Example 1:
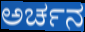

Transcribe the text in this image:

ಅರ್ಚನ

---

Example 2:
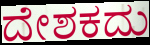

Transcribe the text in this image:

ದೇಶಕದು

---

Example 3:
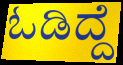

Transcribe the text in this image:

ಓಡಿದ್ದೆ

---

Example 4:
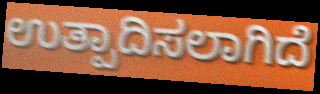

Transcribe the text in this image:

ಉತ್ಪಾದಿಸಲಾಗಿದೆ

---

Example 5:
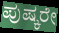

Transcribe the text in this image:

ಪುಷ್ಕರೇ